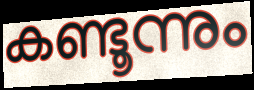
കണ്ടൂന്നും